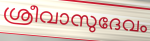
ശ്രീവാസുദേവം